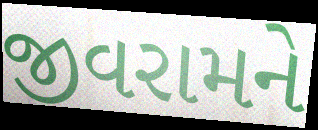
જીવરામને